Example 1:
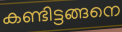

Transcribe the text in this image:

കണ്ടിട്ടങ്ങനെ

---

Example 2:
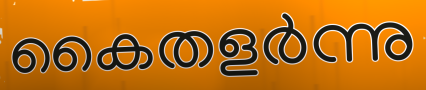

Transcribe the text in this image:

കൈതളർന്നു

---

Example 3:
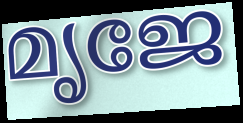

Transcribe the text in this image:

മൃജേ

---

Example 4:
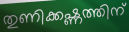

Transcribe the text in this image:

തുണിക്കഷ്ണത്തിന്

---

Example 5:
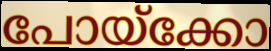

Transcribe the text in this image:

പോയ്ക്കോ